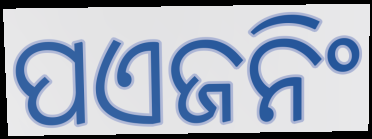
ପଏଜନିଂ